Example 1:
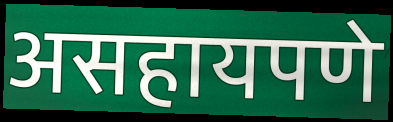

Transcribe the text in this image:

असहायपणे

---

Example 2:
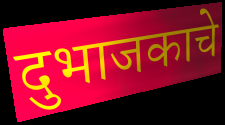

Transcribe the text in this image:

दुभाजकाचे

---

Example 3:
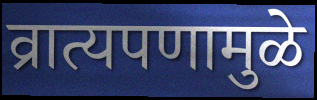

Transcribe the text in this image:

व्रात्यपणामुळे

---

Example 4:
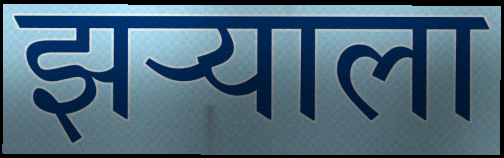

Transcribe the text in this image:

झर्‍याला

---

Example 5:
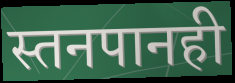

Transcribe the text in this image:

स्तनपानही